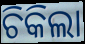
ଚିକିଲା